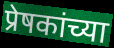
प्रेषकांच्या